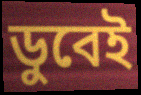
ডুবেই